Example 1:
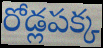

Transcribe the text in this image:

రోడ్లపక్క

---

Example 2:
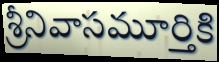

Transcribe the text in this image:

శ్రీనివాసమూర్తికి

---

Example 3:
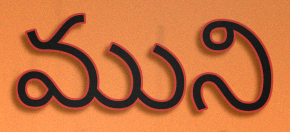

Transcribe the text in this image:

ముని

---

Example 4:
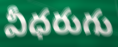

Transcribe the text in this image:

వీధరుగు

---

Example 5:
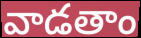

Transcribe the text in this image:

వాడతాం